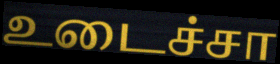
உடைச்சா